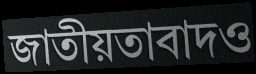
জাতীয়তাবাদও